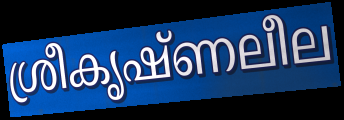
ശ്രീകൃഷ്ണലീല